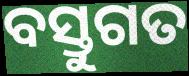
ବସ୍ତୁଗତ